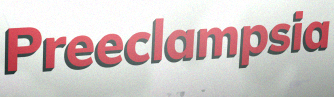
Preeclampsia